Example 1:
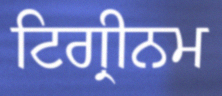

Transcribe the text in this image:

ਟਿਗ੍ਰੀਨਮ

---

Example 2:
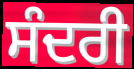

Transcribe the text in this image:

ਸੰਦਰੀ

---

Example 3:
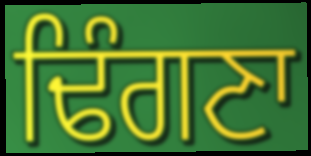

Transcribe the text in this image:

ਢਿੰਗਣਾ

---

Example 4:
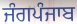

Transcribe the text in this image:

ਜੰਗਪੰਜਾਬ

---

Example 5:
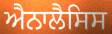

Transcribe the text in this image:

ਐਨਾਲੈਸਿਸ